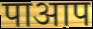
पाआप